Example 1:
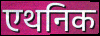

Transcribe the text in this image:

एथनिक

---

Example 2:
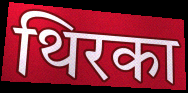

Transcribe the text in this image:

थिरका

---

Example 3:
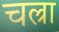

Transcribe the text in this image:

चल्रा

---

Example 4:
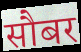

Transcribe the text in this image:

सौबर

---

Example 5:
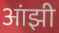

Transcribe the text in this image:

आंझी